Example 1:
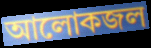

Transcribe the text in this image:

আলোকজল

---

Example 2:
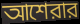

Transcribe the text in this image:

আশেরার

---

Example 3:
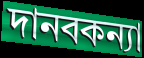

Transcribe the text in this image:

দানবকন্যা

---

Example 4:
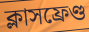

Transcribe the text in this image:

ক্লাসফ্রেণ্ড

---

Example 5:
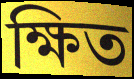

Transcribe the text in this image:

ক্ষিত